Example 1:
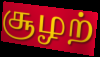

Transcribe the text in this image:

சூழற்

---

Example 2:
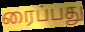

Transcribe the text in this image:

ரைப்பது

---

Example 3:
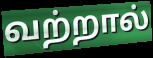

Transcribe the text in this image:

வற்றால்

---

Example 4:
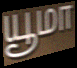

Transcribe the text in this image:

யூமா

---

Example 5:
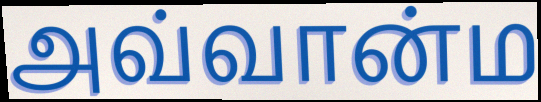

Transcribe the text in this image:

அவ்வான்ம